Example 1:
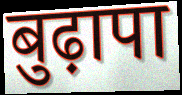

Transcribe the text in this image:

बुढ़ापा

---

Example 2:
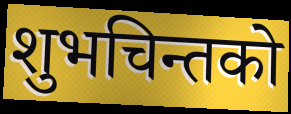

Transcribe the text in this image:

शुभचिन्तको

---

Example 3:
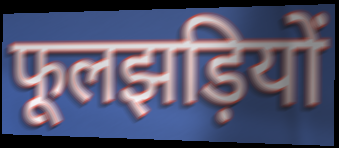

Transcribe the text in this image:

फूलझड़ियों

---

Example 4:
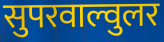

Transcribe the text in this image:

सुपरवाल्वुलर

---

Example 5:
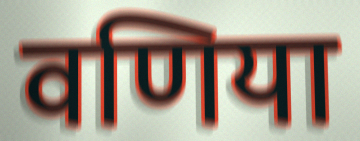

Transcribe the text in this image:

वणिया